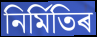
নিৰ্মিতিৰ